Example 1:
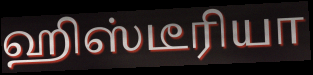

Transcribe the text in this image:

ஹிஸ்டீரியா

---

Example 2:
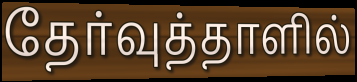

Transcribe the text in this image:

தேர்வுத்தாளில்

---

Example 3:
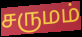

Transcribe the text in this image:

சருமம்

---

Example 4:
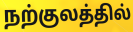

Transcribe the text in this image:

நற்குலத்தில்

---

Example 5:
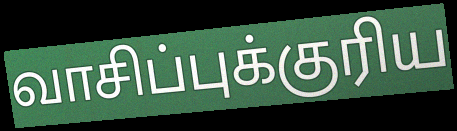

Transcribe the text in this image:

வாசிப்புக்குரிய